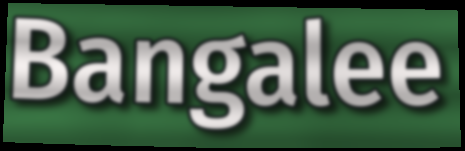
Bangalee